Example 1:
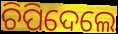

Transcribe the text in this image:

ଚିପିଦେଲେ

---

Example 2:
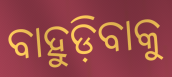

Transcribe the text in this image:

ବାହୁଡ଼ିବାକୁ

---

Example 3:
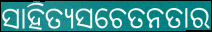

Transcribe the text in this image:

ସାହିତ୍ୟସଚେତନତାର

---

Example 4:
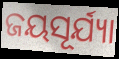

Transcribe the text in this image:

ଜୟସୂର୍ଯ୍ୟା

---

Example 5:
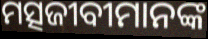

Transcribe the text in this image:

ମତ୍ସଜୀବୀମାନଙ୍କ